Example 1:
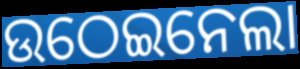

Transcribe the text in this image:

ଉଠେଇନେଲା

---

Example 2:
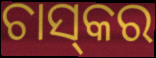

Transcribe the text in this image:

ଚାସ୍‌କର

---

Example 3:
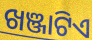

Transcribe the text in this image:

ଖଞ୍ଜାଟିଏ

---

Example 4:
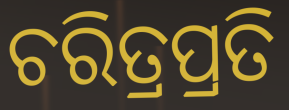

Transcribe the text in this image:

ଚରିତ୍ରପ୍ରତି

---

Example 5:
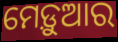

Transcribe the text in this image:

ମେଡ଼ୁଆର